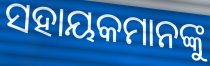
ସହାୟକମାନଙ୍କୁ